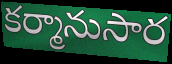
కర్మానుసార